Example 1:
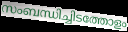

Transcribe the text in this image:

സംബന്ധിച്ചിടത്തോളം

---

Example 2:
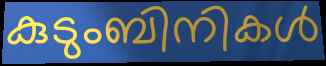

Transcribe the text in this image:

കുടുംബിനികൾ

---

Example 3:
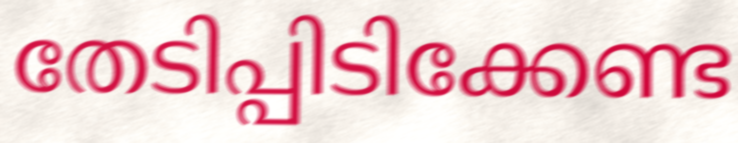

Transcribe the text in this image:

തേടിപ്പിടിക്കേണ്ട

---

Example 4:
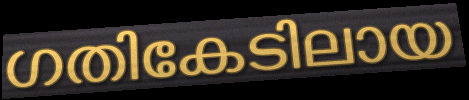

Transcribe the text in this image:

ഗതികേടിലായ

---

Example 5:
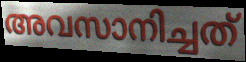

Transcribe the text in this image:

അവസാനിച്ചത്